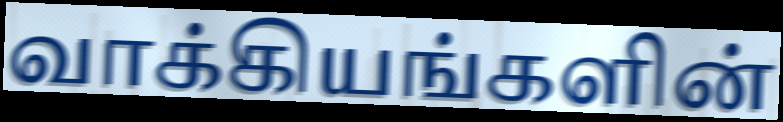
வாக்கியங்களின்